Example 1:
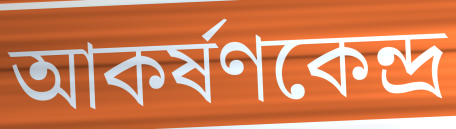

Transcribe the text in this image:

আকর্ষণকেন্দ্র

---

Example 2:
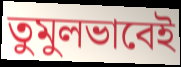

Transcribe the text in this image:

তুমুলভাবেই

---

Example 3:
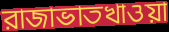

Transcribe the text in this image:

রাজাভাতখাওয়া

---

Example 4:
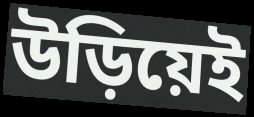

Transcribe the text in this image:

উড়িয়েই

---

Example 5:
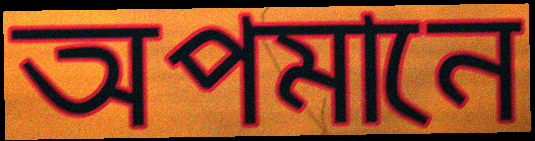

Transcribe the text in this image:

অপমানে